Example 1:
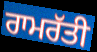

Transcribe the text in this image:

ਰਾਮਰੱਤੀ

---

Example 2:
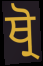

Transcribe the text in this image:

ਥ੍ਰੋ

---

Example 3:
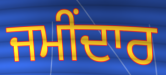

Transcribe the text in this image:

ਜਮੀਂਦਾਰ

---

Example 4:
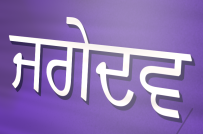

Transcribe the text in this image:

ਜਗੇਦਵ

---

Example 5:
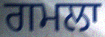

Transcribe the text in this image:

ਗਮਲਾ